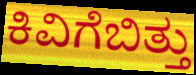
ಕಿವಿಗೆಬಿತ್ತು